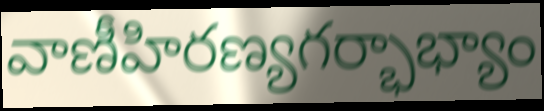
వాణీహిరణ్యగర్భాభ్యాం